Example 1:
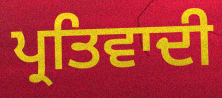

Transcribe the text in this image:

ਪ੍ਰਤਿਵਾਦੀ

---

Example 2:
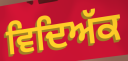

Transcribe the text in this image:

ਵਿਦਿਅੱਕ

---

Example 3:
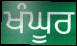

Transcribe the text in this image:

ਖੰਘੂਰ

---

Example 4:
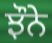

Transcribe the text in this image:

ਝੌਨੇ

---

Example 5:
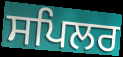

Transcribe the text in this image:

ਸਪਿਲਰ